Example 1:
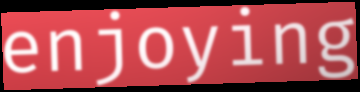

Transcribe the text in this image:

enjoying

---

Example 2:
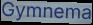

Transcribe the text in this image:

Gymnema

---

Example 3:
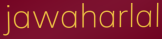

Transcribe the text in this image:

jawaharlal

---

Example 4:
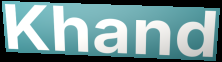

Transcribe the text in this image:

Khand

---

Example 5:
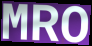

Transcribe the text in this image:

MRO